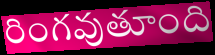
రింగవుతూంది